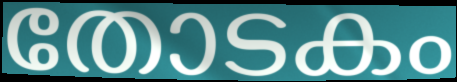
തോടകം